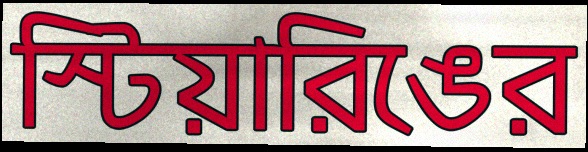
স্টিয়ারিঙের